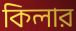
কিলার